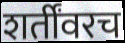
शर्तींवरच